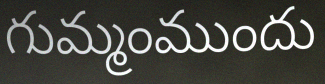
గుమ్మంముందు